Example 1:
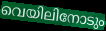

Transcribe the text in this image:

വെയിലിനോടും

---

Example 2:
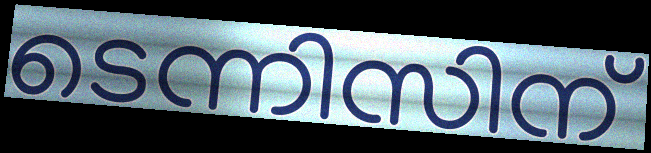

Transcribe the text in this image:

ടെന്നിസിന്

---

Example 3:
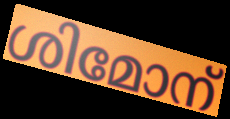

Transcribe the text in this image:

ശിമോന്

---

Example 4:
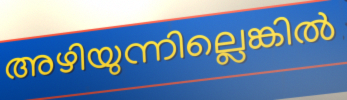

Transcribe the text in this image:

അഴിയുന്നില്ലെങ്കിൽ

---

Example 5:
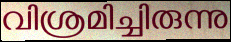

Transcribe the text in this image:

വിശ്രമിച്ചിരുന്നു